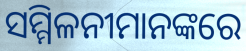
ସମ୍ମିଳନୀମାନଙ୍କରେ